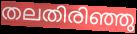
തലതിരിഞ്ഞു